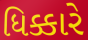
ધિક્કારે